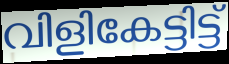
വിളികേട്ടിട്ട്